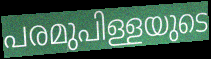
പരമുപിള്ളയുടെ